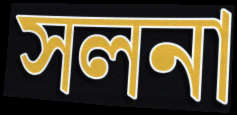
সলনা